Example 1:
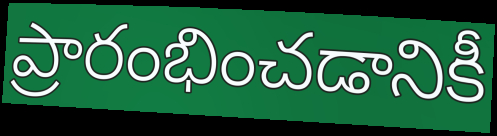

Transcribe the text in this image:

ప్రారంభించడానికీ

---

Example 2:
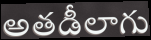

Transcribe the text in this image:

అతడీలాగు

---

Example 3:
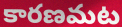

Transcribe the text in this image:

కారణమట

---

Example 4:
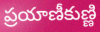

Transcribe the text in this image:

ప్రయాణీకుణ్ణి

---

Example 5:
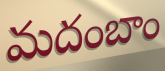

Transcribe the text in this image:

మదంబాం